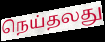
நெய்தலது